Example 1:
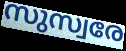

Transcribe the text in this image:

സുസ്വരേ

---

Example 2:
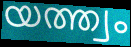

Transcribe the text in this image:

യത്ത്വം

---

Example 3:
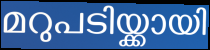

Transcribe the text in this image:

മറുപടിയ്ക്കായി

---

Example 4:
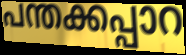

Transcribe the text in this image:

പന്തക്കപ്പാറ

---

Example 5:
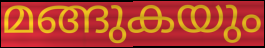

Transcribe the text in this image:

മങ്ങുകയും